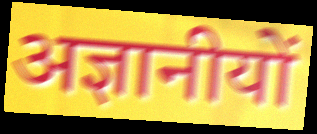
अज्ञानीयों